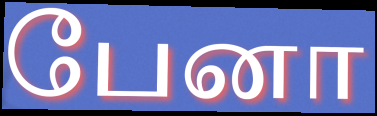
பேனா